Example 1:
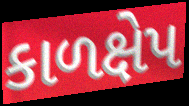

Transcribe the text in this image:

કાળક્ષેપ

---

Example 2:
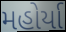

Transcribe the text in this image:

મહોર્યા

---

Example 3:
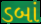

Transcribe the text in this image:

ડબાં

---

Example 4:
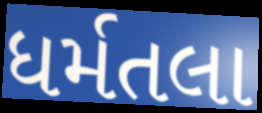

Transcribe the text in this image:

ધર્મતલા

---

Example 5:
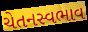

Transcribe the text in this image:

ચેતનસ્વભાવ